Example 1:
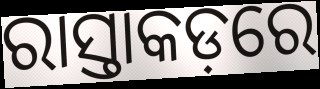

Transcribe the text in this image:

ରାସ୍ତାକଡ଼ରେ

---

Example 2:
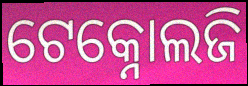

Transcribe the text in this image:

ଟେକ୍ନୋଲଜି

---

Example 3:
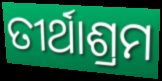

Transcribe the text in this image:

ତୀର୍ଥାଶ୍ରମ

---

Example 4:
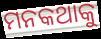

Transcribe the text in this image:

ମନକଥାକୁ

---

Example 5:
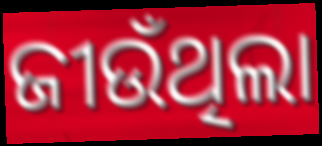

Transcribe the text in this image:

ଜୀଉଁଥିଲା